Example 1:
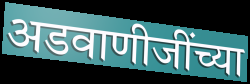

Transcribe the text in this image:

अडवाणीजींच्या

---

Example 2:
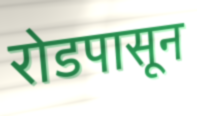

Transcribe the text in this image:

रोडपासून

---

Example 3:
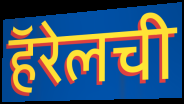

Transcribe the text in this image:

हॅरेलची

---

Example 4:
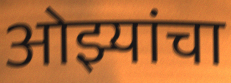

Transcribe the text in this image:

ओझ्यांचा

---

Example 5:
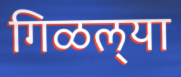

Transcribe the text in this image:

गिळल्या